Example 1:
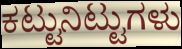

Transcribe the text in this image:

ಕಟ್ಟುನಿಟ್ಟುಗಳು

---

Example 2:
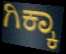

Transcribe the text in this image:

ಗಿಕ್ಕಾ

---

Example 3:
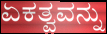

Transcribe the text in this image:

ಏಕತ್ವವನ್ನು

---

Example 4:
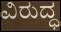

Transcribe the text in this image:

ವಿರುದ್ಧ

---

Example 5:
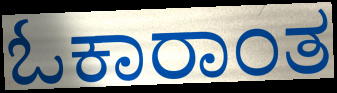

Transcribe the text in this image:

ಓಕಾರಾಂತ